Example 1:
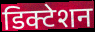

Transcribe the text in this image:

डिक्टेशन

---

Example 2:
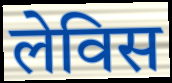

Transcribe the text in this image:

लेविस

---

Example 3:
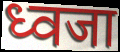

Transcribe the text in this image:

ध्वजा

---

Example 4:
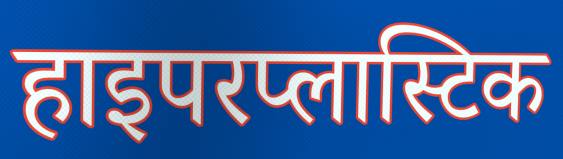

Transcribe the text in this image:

हाइपरप्लास्टिक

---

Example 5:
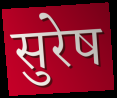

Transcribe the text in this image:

सुरेष